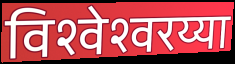
विश्वेश्वरय्या